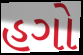
હગો